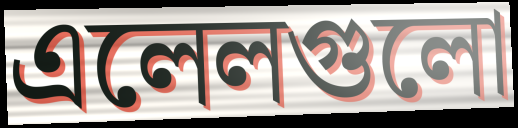
এলেলগুলো